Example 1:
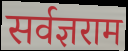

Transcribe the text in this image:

सर्वज्ञराम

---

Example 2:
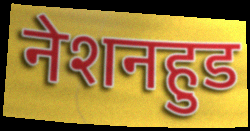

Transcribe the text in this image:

नेशनहुड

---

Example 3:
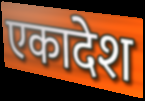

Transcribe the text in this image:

एकादेश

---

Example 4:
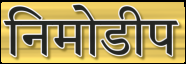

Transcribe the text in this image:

निमोडीप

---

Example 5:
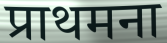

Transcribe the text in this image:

प्राथमना